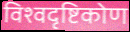
विश्वदृष्टिकोण